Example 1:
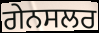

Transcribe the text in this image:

ਗੇਨਸਲਰ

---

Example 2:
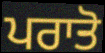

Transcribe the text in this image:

ਪਰਾਤੋ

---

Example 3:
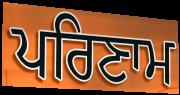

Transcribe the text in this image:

ਪਰਿਣਾਮ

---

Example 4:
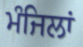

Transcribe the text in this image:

ਮੰਜਿਲਾਂ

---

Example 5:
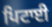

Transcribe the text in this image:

ਪਿਟਾਈ